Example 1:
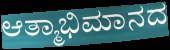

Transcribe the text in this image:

ಆತ್ಮಾಭಿಮಾನದ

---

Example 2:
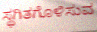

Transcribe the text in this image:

ಸ್ಥಗಿತಗೊಳಿಸುವ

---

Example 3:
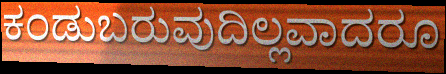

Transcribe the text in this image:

ಕಂಡುಬರುವುದಿಲ್ಲವಾದರೂ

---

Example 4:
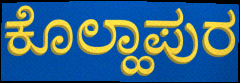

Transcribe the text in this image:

ಕೊಲ್ಹಾಪುರ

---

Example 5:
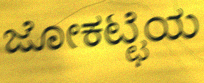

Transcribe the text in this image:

ಜೋಕಟ್ಟೆಯ